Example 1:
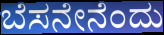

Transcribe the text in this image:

ಬೆಸನೇನೆಂದು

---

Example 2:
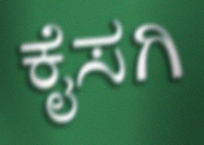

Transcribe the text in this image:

ಕೈಸಗಿ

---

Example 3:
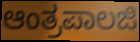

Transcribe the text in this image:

ಆಂತ್ರಪಾಲಜಿ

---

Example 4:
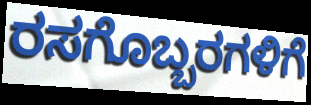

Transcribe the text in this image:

ರಸಗೊಬ್ಬರಗಳಿಗೆ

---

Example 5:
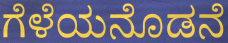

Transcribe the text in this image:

ಗೆಳೆಯನೊಡನೆ